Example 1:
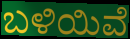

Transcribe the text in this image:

ಬಳಿಯಿವೆ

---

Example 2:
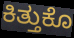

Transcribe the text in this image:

ಕಿತ್ತುಕೊ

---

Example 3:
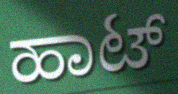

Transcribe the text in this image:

ಹಾಟ್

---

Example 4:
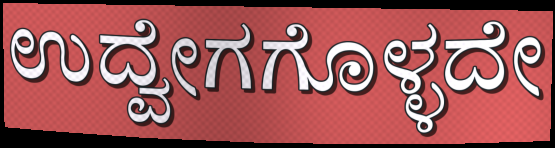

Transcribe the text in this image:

ಉದ್ವೇಗಗೊಳ್ಳದೇ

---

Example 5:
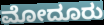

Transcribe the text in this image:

ಮೋದೂರು